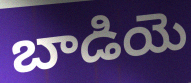
బాడియె